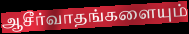
ஆசீர்வாதங்களையும்